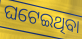
ଘଟେଇଥିବା